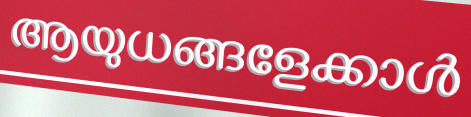
ആയുധങ്ങളേക്കാൾ